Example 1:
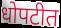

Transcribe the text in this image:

धोपटीत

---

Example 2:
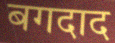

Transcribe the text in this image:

बगदाद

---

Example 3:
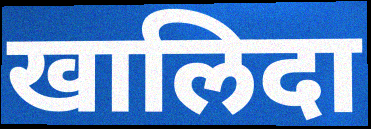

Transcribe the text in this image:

खालिदा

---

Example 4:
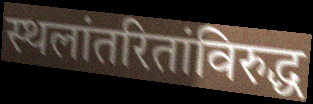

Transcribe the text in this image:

स्थलांतरितांविरुद्ध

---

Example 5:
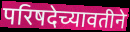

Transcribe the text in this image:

परिषदेच्यावतीने